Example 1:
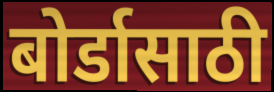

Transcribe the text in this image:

बोर्डासाठी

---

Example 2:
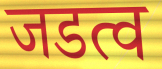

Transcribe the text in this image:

जडत्व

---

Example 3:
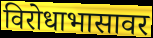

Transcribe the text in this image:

विरोधाभासावर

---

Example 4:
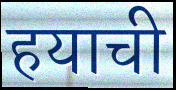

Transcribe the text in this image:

हयाची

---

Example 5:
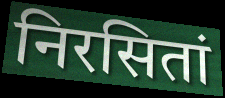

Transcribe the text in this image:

निरसितां